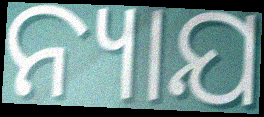
ନ୍ୟାଯ